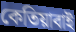
কেতিয়াবাই